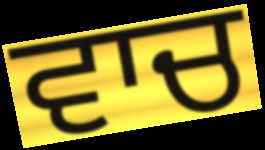
ਵਾਚ